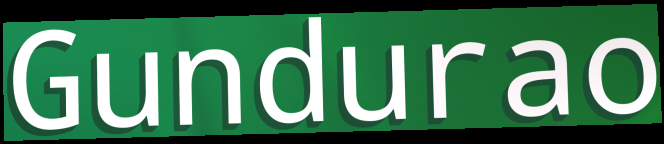
Gundurao